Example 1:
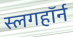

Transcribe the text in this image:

स्लगहॉर्न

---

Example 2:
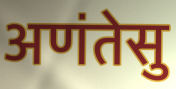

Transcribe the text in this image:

अणंतेसु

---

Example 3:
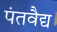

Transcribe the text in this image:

पंतवैद्य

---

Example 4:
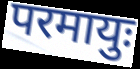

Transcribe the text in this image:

परमायुः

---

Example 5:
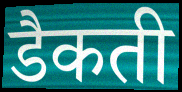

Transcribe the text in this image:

डैकती